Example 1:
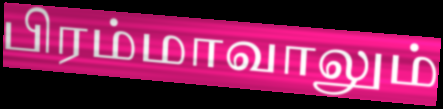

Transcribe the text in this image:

பிரம்மாவாலும்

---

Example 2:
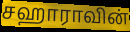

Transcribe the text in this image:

சஹாராவின்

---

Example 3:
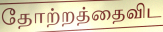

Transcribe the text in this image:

தோற்றத்தைவிட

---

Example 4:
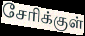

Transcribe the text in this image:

சேரிக்குள்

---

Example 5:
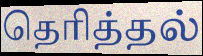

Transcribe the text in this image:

தெரித்தல்